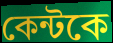
কেন্টকে